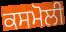
ਕਸਮੋਲੀ